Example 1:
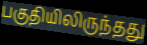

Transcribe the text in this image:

பகுதியிலிருந்தது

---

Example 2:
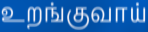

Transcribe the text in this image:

உறங்குவாய்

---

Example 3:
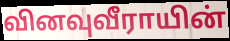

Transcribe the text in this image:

வினவுவீராயின்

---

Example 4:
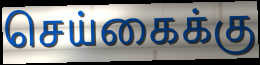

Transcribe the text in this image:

செய்கைக்கு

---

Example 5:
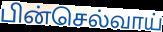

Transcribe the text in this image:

பின்செல்வாய்